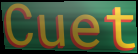
Cuet